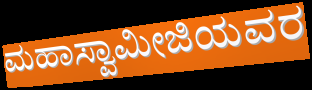
ಮಹಾಸ್ವಾಮೀಜಿಯವರ